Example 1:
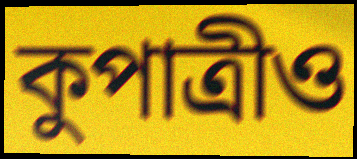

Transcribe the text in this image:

কুপাত্রীও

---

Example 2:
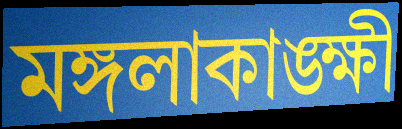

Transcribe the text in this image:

মঙ্গলাকাঙ্ক্ষী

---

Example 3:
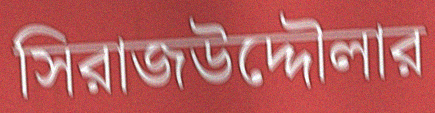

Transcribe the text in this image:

সিরাজউদ্দৌলার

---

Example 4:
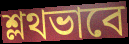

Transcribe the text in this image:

শ্লথভাবে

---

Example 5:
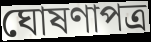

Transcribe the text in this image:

ঘোষণাপত্র